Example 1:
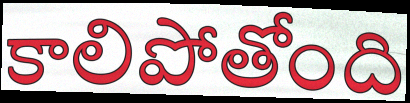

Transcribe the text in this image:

కాలిపోతోంది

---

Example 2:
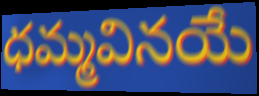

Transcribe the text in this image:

ధమ్మవినయే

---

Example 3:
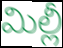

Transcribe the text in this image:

మిల్లీ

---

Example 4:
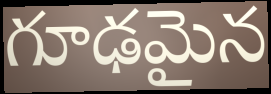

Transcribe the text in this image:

గూఢమైన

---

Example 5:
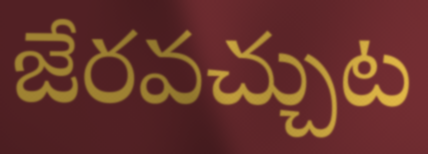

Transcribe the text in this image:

జేరవచ్చుట